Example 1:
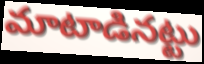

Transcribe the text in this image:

మాటాడినట్టు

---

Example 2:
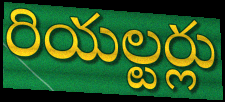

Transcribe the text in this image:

రియల్టర్లు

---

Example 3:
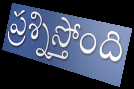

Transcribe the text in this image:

ప్రశ్నిస్తోంది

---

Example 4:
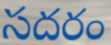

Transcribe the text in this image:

సదరం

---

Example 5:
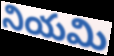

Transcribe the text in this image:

నియమి